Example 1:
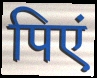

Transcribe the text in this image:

पिएं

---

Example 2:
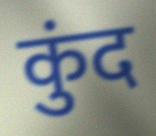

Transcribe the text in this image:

कुंद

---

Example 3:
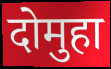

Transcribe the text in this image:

दोमुहा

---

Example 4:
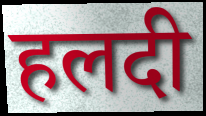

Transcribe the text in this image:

हलदी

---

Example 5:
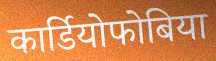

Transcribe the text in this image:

कार्डियोफोबिया